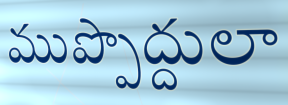
ముప్పొద్దులా